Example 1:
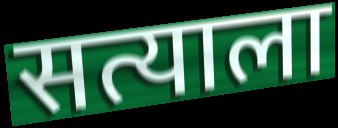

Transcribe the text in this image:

सत्याला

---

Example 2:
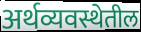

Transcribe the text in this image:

अर्थव्यवस्थेतील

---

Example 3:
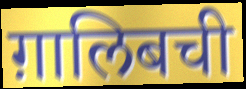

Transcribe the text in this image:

ग़ालिबची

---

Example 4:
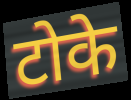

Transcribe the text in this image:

टोके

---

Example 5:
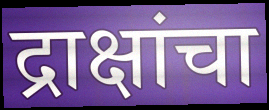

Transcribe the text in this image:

द्राक्षांचा